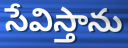
సేవిస్తాను